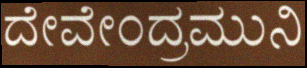
ದೇವೇಂದ್ರಮುನಿ